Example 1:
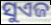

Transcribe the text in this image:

ସୁଏଜ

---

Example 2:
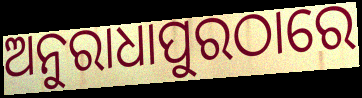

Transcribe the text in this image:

ଅନୁରାଧାପୁରଠାରେ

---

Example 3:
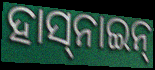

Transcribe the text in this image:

ହାସ୍‌ନାଇନ୍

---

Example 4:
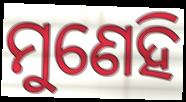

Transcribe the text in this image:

ମୁଣେହି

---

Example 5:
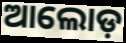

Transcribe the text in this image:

ଆଲୋଡ଼